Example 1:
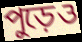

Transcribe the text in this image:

পুড়েও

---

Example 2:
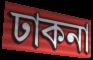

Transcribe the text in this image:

ঢাকনা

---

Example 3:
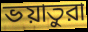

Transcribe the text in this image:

ভয়াতুরা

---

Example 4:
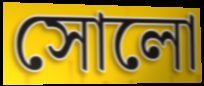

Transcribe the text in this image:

সোলো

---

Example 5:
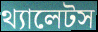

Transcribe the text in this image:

থ্যালেটস